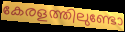
കേരളത്തിലുണ്ടോ